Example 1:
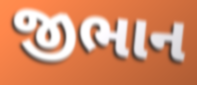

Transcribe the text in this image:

જીભાન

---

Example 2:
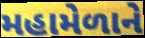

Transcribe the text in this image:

મહામેળાને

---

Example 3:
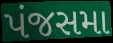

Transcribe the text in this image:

પંજસમા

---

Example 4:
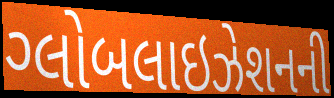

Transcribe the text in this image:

ગ્લોબલાઇઝેશનની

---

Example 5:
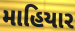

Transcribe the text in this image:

માહિયાર